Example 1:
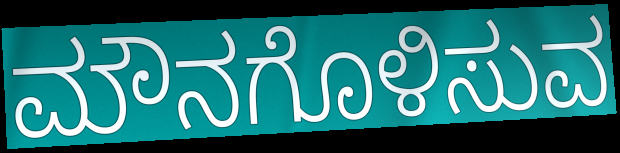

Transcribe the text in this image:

ಮೌನಗೊಳಿಸುವ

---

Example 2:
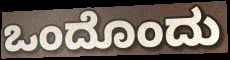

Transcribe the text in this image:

ಒಂದೊಂದು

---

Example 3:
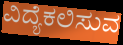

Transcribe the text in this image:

ವಿದ್ಯೆಕಲಿಸುವ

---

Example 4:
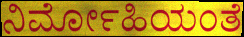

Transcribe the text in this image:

ನಿರ್ಮೋಹಿಯಂತೆ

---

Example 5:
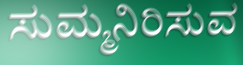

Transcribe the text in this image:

ಸುಮ್ಮನಿರಿಸುವ